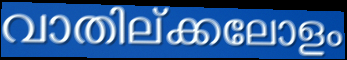
വാതില്ക്കലോളം